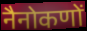
नैनोकणों